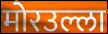
मोरउल्ला